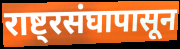
राष्ट्रसंघापासून